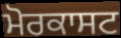
ਮੋਰਕਾਸਟ